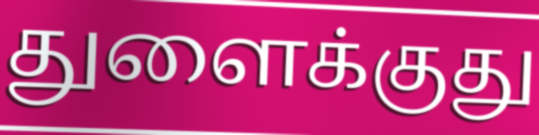
துளைக்குது